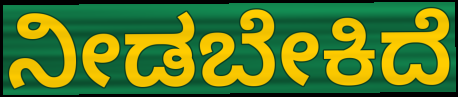
ನೀಡಬೇಕಿದೆ